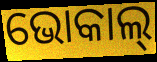
ଭୋକାଲ୍